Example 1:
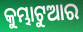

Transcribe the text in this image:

କୁମ୍ଭାଟୁଆର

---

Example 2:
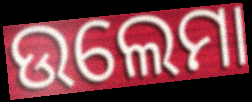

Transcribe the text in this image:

ଉଲେମା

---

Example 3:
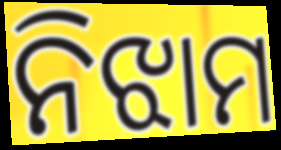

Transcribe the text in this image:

ନିଝାମ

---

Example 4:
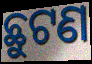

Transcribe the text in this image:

ଛୁଟଣ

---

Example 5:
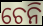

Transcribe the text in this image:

ଚେନି